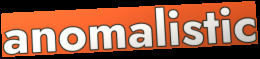
anomalistic